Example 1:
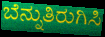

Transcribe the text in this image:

ಬೆನ್ನುತಿರುಗಿಸಿ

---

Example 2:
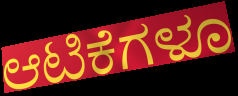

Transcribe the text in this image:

ಆಟಿಕೆಗಳೂ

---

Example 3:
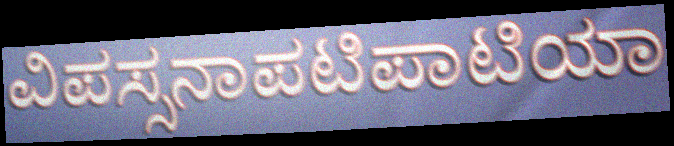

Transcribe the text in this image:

ವಿಪಸ್ಸನಾಪಟಿಪಾಟಿಯಾ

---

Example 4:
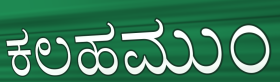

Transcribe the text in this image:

ಕಲಹಮುಂ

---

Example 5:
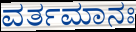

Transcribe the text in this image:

ವರ್ತಮಾನಃ